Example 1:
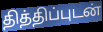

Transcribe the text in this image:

தித்திப்புடன்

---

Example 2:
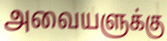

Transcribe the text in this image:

அவையளுக்கு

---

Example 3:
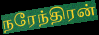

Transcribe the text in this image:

நரேந்திரன்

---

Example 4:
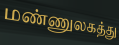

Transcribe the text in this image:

மண்ணுலகத்து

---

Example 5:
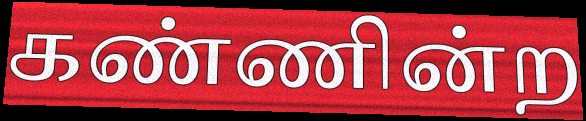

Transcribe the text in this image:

கண்ணின்ற